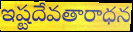
ఇష్టదేవతారాధన